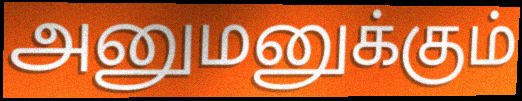
அனுமனுக்கும்